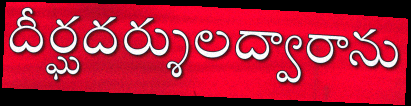
దీర్ఘదర్శులద్వారాను